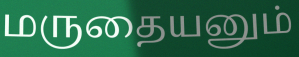
மருதையனும்